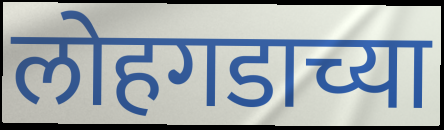
लोहगडाच्या